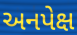
અનપેક્ષ